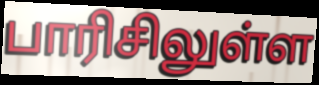
பாரிசிலுள்ள